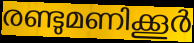
രണ്ടുമണിക്കൂർ